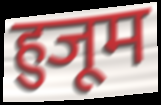
हुजूम